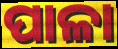
ପାଳା